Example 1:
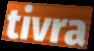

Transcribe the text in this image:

tivra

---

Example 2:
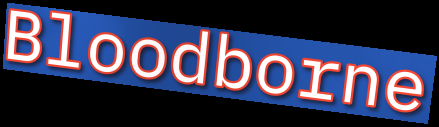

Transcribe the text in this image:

Bloodborne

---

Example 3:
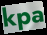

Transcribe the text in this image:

kpa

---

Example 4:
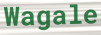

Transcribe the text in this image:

Wagale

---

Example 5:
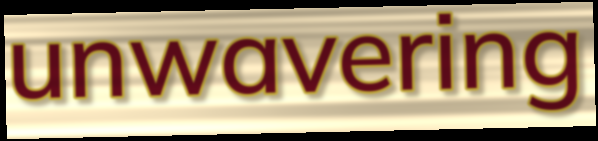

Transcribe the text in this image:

unwavering